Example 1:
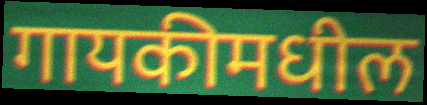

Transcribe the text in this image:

गायकीमधील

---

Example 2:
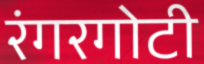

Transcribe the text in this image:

रंगरगोटी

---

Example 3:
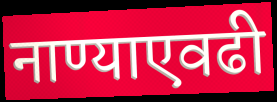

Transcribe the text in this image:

नाण्याएवढी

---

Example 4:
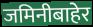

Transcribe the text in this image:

जमिनीबाहेर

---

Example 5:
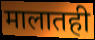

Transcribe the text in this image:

मालातही